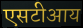
एसटीआय